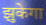
झुकेगा